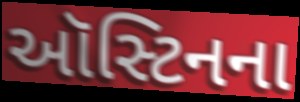
ઑસ્ટિનના